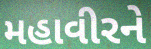
મહાવીરને